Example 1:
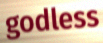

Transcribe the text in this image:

godless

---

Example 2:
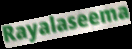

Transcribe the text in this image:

Rayalaseema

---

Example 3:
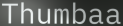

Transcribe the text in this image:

Thumbaa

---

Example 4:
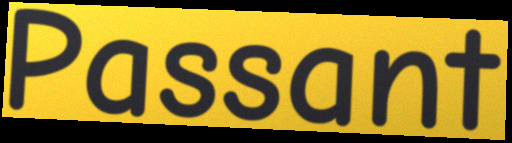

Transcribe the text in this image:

Passant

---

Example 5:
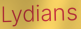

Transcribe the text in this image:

Lydians